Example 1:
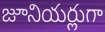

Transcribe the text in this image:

జూనియర్లుగా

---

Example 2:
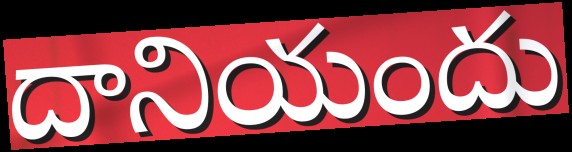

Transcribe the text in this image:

దానియందు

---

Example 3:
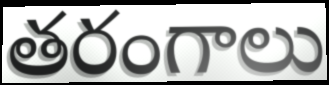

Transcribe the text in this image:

తరంగాలు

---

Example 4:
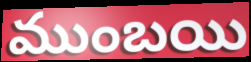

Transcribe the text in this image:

ముంబయి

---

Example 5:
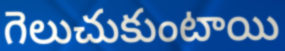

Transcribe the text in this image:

గెలుచుకుంటాయి